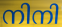
നിനി